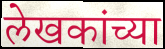
लेखकांच्या